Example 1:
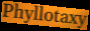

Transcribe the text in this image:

Phyllotaxy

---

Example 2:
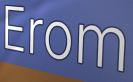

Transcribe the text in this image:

Erom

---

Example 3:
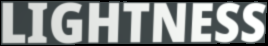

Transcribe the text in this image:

LIGHTNESS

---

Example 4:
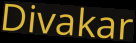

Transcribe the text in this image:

Divakar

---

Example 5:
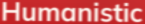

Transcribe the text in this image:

Humanistic